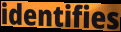
identifies